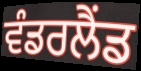
ਵੰਡਰਲੈਂਡ